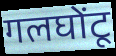
गलघोंटू